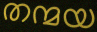
തന്മയ